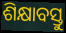
ଶିକ୍ଷାବସ୍ତୁ